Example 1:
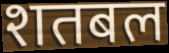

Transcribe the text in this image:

शतबल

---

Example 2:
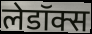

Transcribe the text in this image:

लेडॉक्स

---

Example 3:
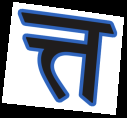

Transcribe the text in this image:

त्त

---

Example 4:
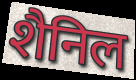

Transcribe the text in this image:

शैनिल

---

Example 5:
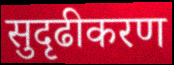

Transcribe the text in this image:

सुदृढीकरण